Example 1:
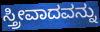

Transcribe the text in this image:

ಸ್ತ್ರೀವಾದವನ್ನು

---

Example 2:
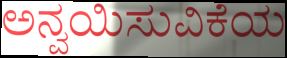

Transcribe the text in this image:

ಅನ್ವಯಿಸುವಿಕೆಯ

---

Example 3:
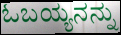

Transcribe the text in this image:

ಓಬಯ್ಯನನ್ನು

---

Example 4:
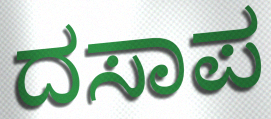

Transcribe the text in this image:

ದಸಾಪ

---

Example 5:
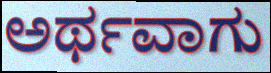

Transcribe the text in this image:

ಅರ್ಥವಾಗು